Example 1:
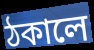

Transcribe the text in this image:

ঠকালে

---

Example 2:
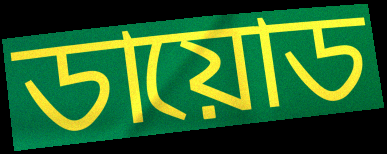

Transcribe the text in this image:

ডায়োড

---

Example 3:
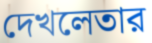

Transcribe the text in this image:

দেখলেতার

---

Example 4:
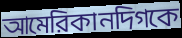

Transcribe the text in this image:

আমেরিকানদিগকে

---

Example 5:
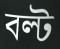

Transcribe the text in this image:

বল্ট